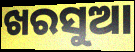
ଖରସୁଆ